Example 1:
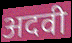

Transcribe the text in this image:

अदवी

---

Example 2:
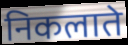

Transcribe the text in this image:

निकलाते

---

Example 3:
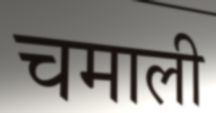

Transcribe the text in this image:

चमाली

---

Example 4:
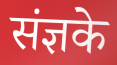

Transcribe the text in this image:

संज्ञके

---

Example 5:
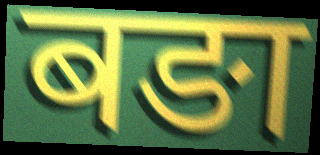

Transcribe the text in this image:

बङा